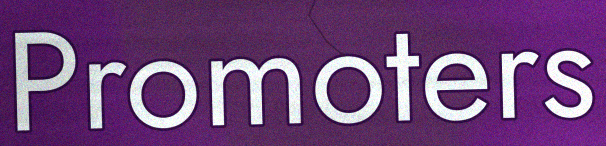
Promoters